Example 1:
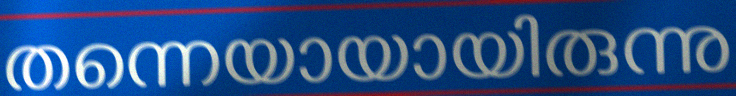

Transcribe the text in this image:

തന്നെയായായിരുന്നു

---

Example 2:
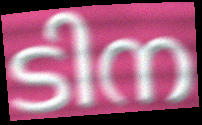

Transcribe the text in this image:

ടിന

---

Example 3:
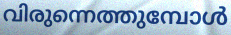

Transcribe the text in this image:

വിരുന്നെത്തുമ്പോൾ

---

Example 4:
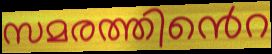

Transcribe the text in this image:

സമരത്തിൻെറ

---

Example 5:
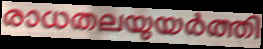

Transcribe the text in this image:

രാധതലയുയർത്തി